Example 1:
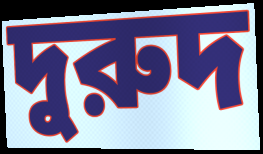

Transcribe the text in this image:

দুরুদ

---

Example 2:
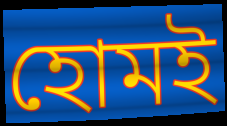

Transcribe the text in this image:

হোমই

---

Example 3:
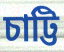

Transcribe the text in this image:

চাট্টি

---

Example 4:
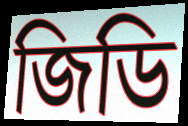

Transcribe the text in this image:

জিডি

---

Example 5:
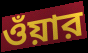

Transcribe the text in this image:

ওঁয়ার